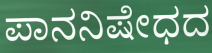
ಪಾನನಿಷೇಧದ